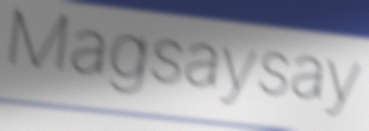
Magsaysay